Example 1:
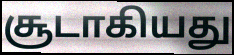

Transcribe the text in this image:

சூடாகியது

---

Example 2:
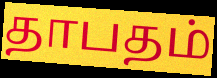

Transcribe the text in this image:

தாபதம்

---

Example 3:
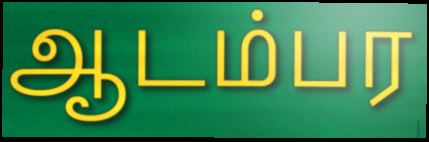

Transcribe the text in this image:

ஆடம்பர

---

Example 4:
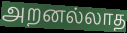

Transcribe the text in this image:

அறனல்லாத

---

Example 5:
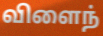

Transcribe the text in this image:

விளைந்